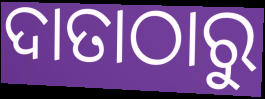
ଦାତାଠାରୁ